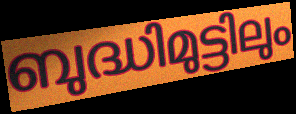
ബുദ്ധിമുട്ടിലും